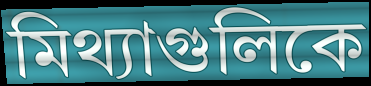
মিথ্যাগুলিকে